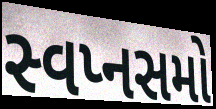
સ્વપ્નસમો